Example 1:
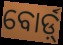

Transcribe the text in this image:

ବୋର୍ଡ଼୍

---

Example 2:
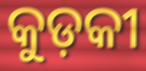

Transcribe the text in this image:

କୁଡ଼କୀ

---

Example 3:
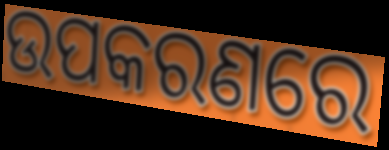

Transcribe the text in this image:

ଉପକରଣରେ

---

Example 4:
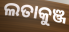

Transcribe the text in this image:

ଲତାକୁଞ୍ଜ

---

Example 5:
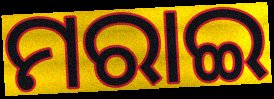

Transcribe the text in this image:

ମରାଇ